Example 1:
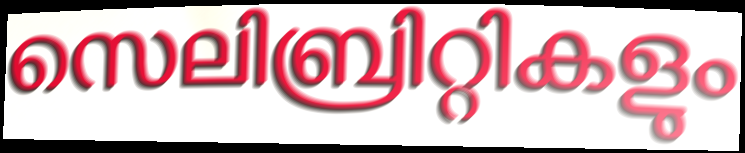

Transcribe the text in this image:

സെലിബ്രിറ്റികളും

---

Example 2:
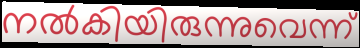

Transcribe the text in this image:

നൽകിയിരുന്നുവെന്ന്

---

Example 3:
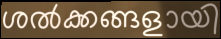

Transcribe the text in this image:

ശൽക്കങ്ങളായി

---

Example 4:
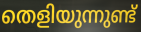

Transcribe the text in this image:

തെളിയുന്നുണ്ട്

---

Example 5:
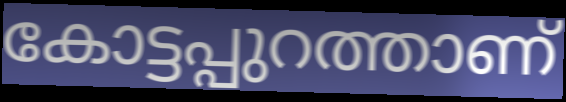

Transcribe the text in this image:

കോട്ടപ്പുറത്താണ്